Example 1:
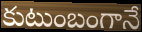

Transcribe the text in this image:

కుటుంబంగానే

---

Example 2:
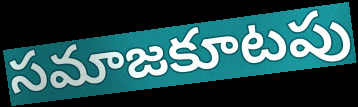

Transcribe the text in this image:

సమాజకూటపు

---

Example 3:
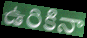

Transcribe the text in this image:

ఉరికినా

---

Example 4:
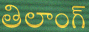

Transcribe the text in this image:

తిలాంగ్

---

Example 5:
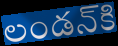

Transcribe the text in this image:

లండన్‌కి